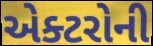
એક્ટરોની